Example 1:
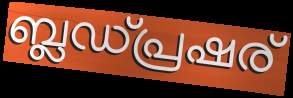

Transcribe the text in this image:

ബ്ലഡ്പ്രഷര്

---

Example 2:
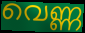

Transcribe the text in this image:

വെണ്ണ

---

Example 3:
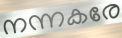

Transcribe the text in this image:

നന്നകരേ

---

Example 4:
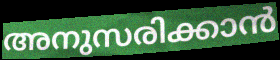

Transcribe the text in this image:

അനുസരിക്കാൻ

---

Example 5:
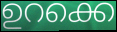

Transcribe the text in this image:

ഉറക്കെ